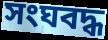
সংঘবদ্ধ